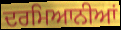
ਦਰਮਿਆਨੀਆਂ